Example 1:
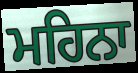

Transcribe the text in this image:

ਮਹਿਨਾ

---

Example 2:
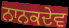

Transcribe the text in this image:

ਨਾਨਕਦੇਵ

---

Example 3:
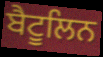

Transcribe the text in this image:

ਬੈਟੂਲਿਨ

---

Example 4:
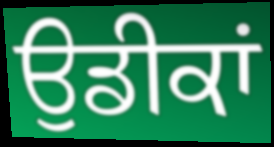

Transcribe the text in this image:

ਉਡੀਕਾਂ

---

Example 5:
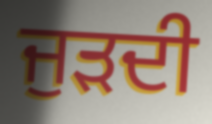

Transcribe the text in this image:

ਜੁੜਦੀ